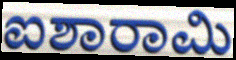
ಐಶಾರಾಮಿ